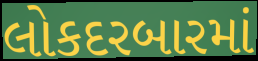
લોકદરબારમાં